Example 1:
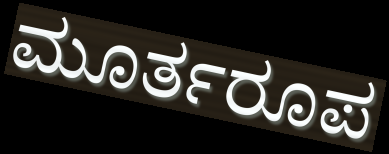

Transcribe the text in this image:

ಮೂರ್ತರೂಪ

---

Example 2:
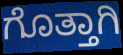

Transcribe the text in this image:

ಗೊತ್ತಾಗಿ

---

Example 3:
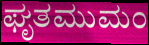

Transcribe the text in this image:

ಘೃತಮುಮಂ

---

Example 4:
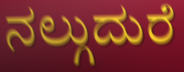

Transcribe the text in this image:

ನಲ್ಗುದುರೆ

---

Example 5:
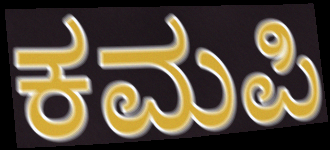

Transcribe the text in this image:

ಕಮಪಿ